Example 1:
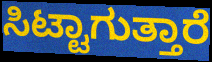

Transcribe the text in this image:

ಸಿಟ್ಟಾಗುತ್ತಾರೆ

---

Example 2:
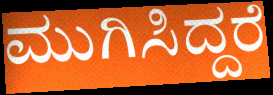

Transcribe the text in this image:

ಮುಗಿಸಿದ್ದರೆ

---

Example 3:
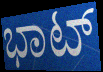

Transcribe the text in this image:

ಭಾಟ್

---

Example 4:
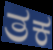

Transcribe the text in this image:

ತಕ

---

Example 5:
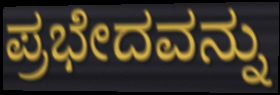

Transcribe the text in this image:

ಪ್ರಭೇದವನ್ನು